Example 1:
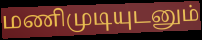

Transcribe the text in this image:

மணிமுடியுடனும்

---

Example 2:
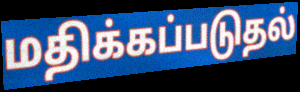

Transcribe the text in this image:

மதிக்கப்படுதல்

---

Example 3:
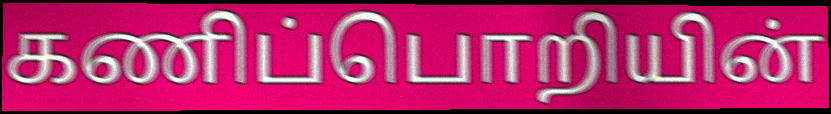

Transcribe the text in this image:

கணிப்பொறியின்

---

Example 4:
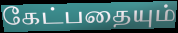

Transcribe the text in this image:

கேட்பதையும்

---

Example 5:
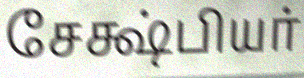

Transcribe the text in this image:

சேக்ஷ்பியர்